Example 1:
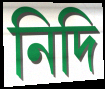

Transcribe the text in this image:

নিদি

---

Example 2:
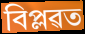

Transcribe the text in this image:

বিপ্লৱত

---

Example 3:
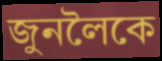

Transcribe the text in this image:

জুনলৈকে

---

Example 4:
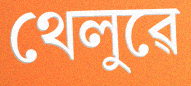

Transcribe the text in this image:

থেলুৱে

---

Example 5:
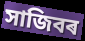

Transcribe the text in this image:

সাজিবৰ